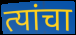
त्‍यांचा